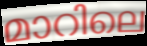
മാറിലെ